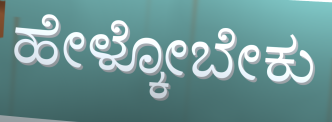
ಹೇಳ್ಕೋಬೇಕು